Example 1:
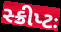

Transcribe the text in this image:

સ્ક્રીપ્ટઃ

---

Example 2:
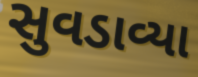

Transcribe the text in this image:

સુવડાવ્યા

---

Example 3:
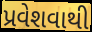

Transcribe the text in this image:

પ્રવેશવાથી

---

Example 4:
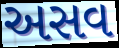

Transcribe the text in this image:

અસવ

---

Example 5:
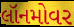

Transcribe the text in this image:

લૉનમોવર